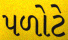
પળોટે